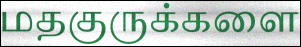
மதகுருக்களை